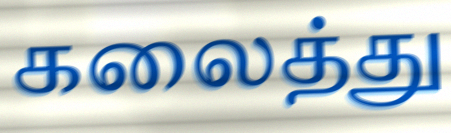
கலைத்து